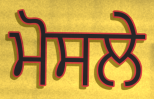
ਮੋਸਲੇ